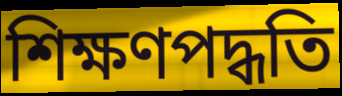
শিক্ষণপদ্ধতি